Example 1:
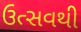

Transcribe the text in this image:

ઉત્સવથી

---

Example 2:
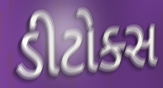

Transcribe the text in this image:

ડીટોક્સ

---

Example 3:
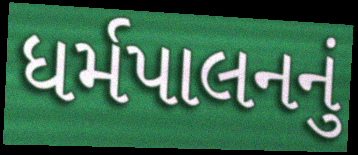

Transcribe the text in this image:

ધર્મપાલનનું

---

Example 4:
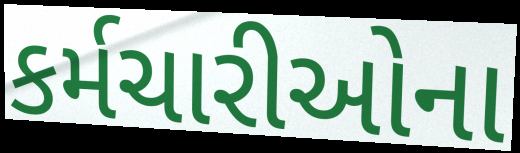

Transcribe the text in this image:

કર્મચારીઓના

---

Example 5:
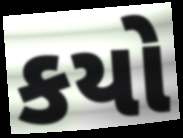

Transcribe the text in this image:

કયો